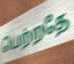
பெற்றதே